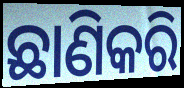
ଛାଣିକରି